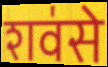
शव॑से